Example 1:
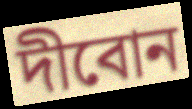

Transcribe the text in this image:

দীবোন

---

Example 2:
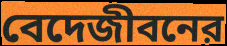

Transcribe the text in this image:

বেদেজীবনের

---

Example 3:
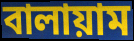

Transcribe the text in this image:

বালায়াম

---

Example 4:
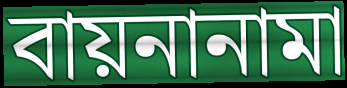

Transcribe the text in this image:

বায়নানামা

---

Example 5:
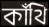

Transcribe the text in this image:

কাঁথি